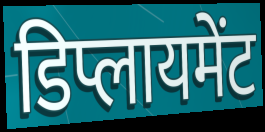
डिप्लायमेंट